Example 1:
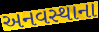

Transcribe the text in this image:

અનવસ્થાના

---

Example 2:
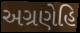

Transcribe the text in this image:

અગ્રણેહિ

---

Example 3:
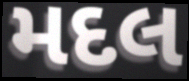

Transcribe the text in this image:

મદલ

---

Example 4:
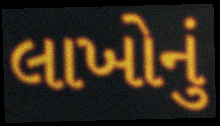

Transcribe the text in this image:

લાખોનું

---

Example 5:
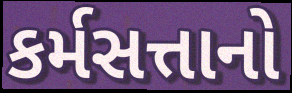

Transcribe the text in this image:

કર્મસત્તાનો